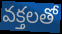
వక్తలతో